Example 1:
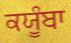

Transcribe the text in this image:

ਕਯੂੰਬਾ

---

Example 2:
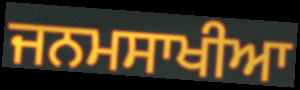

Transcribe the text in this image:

ਜਨਮਸਾਖੀਆ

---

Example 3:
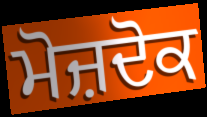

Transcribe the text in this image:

ਮੋਜ਼ਦੋਕ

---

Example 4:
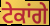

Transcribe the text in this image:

ਟੇਕਾਂਗੇ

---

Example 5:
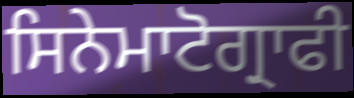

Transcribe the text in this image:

ਸਿਨੇਮਾਟੋਗ੍ਰਾਫੀ